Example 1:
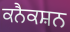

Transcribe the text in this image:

ਕਨੈਕਸ਼ਨ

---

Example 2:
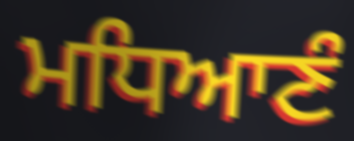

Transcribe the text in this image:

ਮਧਿਆਣੰ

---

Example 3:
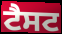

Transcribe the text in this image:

ਟੈਸਟ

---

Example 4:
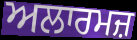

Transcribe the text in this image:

ਅਲਾਰਮਜ਼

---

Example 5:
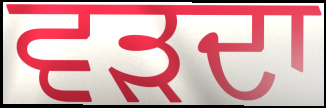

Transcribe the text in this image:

ਵੜਦਾ